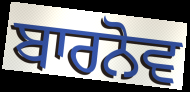
ਬਾਰਨੋਵ